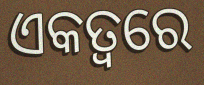
ଏକତ୍ୱରେ